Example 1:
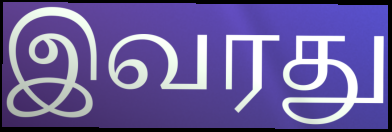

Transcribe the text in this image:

இவரது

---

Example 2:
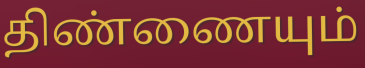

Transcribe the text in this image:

திண்ணையும்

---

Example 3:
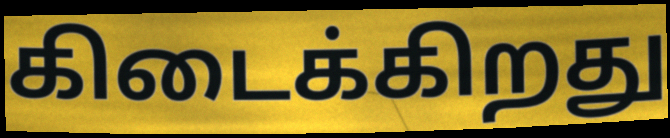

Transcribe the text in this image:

கிடைக்கிறது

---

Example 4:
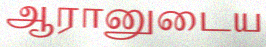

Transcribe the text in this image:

ஆரானுடைய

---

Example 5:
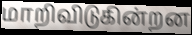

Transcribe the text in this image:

மாறிவிடுகின்றன